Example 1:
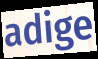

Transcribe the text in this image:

adige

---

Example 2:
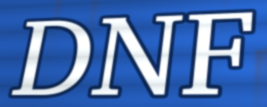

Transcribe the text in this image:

DNF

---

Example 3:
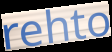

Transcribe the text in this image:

rehto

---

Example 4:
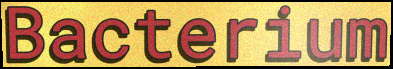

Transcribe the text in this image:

Bacterium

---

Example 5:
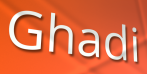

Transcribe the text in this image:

Ghadi